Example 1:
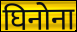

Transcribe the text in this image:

घिनोना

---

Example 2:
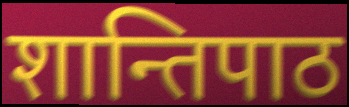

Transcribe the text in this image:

शान्तिपाठ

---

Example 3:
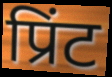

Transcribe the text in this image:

प्रिंट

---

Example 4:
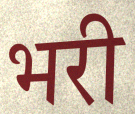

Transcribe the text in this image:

भरी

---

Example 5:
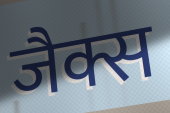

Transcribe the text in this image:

जैक्स